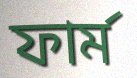
ফার্ম